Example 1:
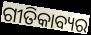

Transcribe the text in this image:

ଗୀତିକାବ୍ୟର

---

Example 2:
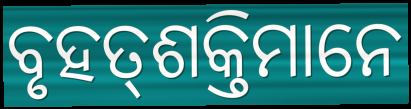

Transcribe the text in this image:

ବୃହତ୍‌ଶକ୍ତିମାନେ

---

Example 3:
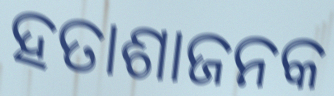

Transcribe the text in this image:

ହତାଶାଜନକ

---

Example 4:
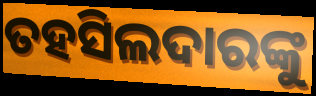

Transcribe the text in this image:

ତହସିଲଦାରଙ୍କୁ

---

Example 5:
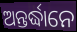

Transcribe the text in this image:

ଅନ୍ତର୍ଦ୍ଧାନେ